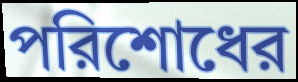
পরিশোধের